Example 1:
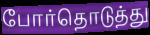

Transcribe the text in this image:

போர்தொடுத்து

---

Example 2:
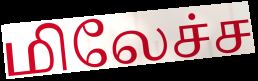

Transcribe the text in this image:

மிலேச்ச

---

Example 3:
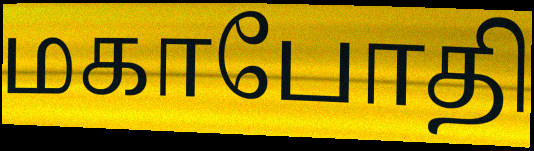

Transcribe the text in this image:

மகாபோதி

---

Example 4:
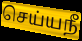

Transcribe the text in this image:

செய்யநீ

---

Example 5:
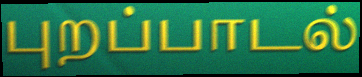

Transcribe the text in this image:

புறப்பாடல்